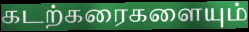
கடற்கரைகளையும்